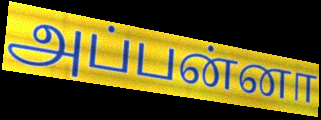
அப்பன்னா